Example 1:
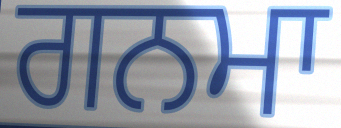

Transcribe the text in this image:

ਗਨਮਾ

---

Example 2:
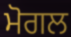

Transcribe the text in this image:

ਮੋਗਲ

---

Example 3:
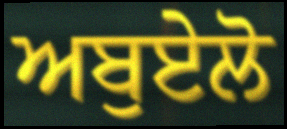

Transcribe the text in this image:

ਅਬੁਏਲੋ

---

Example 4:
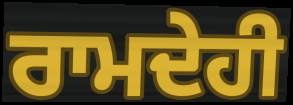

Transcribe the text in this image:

ਰਾਮਦੇਹੀ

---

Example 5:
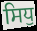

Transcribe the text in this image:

ਸਿਧੁ